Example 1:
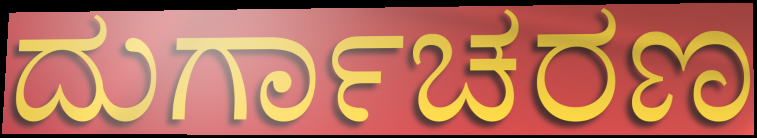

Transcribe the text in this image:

ದುರ್ಗಾಚರಣ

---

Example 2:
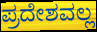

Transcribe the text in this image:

ಪ್ರದೇಶವಲ್ಲ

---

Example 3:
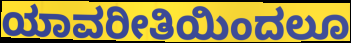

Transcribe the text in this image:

ಯಾವರೀತಿಯಿಂದಲೂ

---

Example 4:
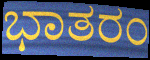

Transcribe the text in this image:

ಭಾತರಂ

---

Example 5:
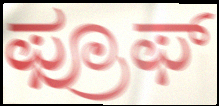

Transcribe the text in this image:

ಫ್ರೂಫ್